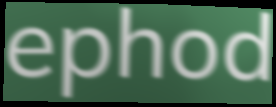
ephod